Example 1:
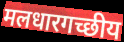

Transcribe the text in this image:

मलधारगच्छीय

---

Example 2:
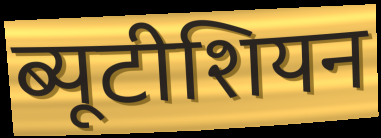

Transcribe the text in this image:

ब्यूटीशियन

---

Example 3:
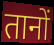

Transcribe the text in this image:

तानों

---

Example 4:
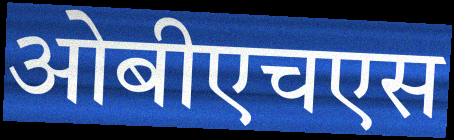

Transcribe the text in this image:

ओबीएचएस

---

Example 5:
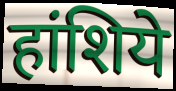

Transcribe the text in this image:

हांशिये